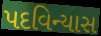
પદવિન્યાસ